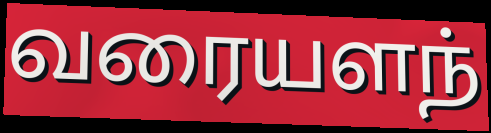
வரையளந்